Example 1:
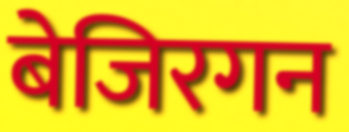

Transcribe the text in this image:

बेजिरगन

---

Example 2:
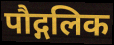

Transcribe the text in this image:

पौद्गलिक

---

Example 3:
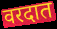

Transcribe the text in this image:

वरदात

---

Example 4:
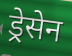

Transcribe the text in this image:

ड्रेसेन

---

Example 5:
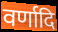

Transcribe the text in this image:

वर्णादि